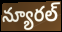
న్యూరల్